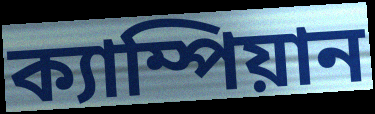
ক্যাম্পিয়ান